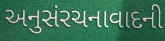
અનુસંરચનાવાદની